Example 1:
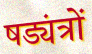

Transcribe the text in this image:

षड्यंत्रों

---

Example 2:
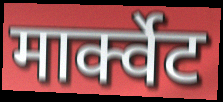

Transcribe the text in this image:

मार्क्वेट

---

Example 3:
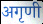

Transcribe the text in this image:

अगृणी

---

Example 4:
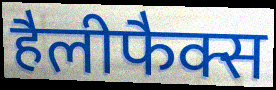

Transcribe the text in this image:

हैलीफैक्स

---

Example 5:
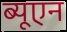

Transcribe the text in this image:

ब्यूएन